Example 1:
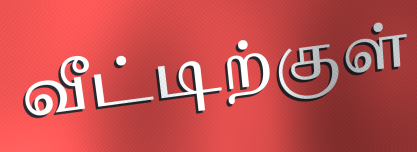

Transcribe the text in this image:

வீட்டிற்குள்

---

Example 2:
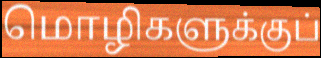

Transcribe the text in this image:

மொழிகளுக்குப்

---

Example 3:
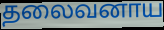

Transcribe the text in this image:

தலைவனாய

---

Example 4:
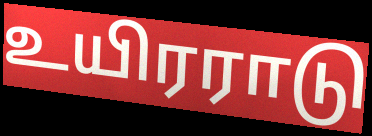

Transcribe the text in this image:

உயிரராடு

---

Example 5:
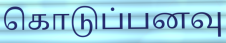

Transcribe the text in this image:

கொடுப்பனவு